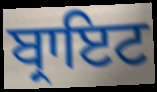
ਬ੍ਰਾਇਟ